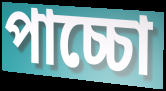
পাচ্চো